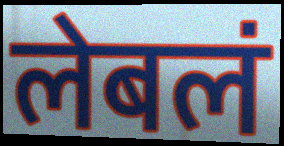
लेबलं